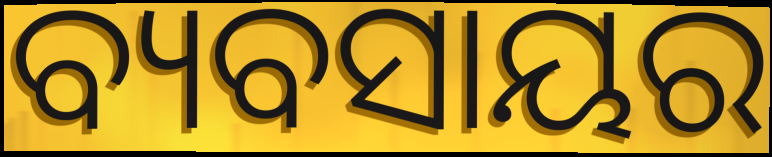
ବ୍ୟବସାୟର